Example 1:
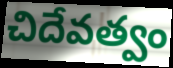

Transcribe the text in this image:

చిదేవత్వం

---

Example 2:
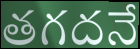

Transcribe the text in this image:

తగదనే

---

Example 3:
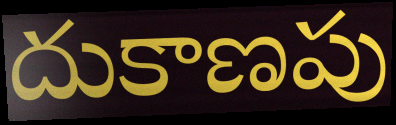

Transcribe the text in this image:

దుకాణపు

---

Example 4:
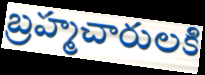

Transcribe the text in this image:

బ్రహ్మచారులకి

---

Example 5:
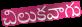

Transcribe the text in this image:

చిలుకవాగు